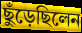
ছুঁড়েছিলেন